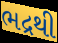
ભદ્રથી